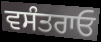
ਵਸੰਤਰਾਓ